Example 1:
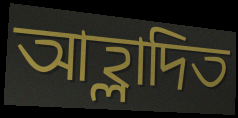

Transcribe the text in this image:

আহ্লাদিত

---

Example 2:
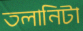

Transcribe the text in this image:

তলানিটা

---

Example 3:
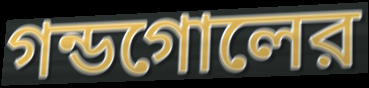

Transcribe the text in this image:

গন্ডগোলের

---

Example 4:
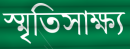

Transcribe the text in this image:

স্মৃতিসাক্ষ্য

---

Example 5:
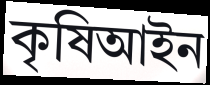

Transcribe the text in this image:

কৃষিআইন